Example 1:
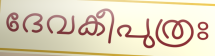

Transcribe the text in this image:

ദേവകീപുത്രഃ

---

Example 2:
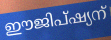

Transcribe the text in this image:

ഈജിപ്ഷ്യന്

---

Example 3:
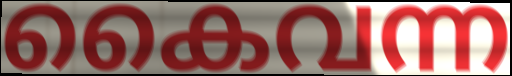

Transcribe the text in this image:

കൈവന്ന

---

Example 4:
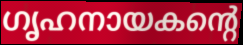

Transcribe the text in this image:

ഗൃഹനായകന്റെ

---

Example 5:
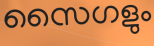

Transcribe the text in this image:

സൈഗളും